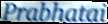
Prabhatai